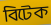
বিটেক